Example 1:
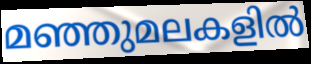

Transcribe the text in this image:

മഞ്ഞുമലകളിൽ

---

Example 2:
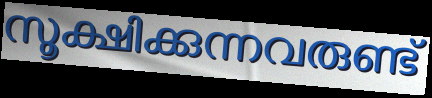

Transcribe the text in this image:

സൂക്ഷിക്കുന്നവരുണ്ട്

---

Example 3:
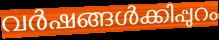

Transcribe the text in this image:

വർഷങ്ങൾക്കിപ്പുറം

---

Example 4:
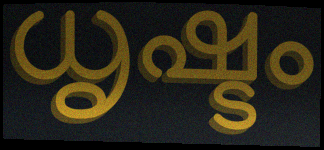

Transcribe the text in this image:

ധൃഷ്ടം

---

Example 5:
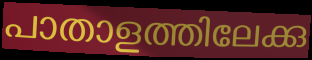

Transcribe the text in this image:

പാതാളത്തിലേക്കു